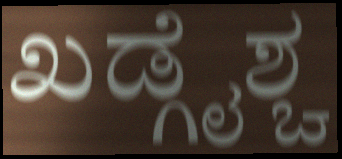
ಖಡ್ಗೈಶ್ಚ